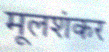
मूलशंकर